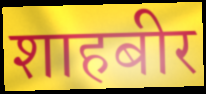
शाहबीर